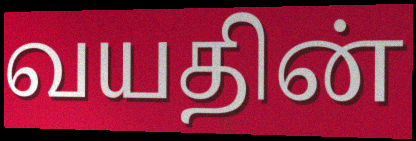
வயதின்